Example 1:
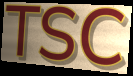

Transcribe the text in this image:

TSC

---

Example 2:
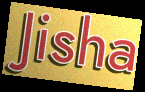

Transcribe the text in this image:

Jisha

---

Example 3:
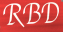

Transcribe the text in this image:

RBD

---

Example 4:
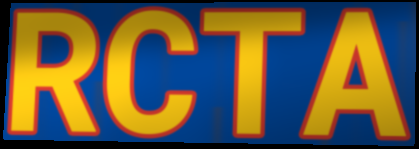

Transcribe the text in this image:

RCTA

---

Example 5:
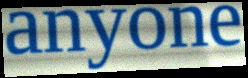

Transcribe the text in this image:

anyone